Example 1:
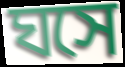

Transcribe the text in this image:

ঘসে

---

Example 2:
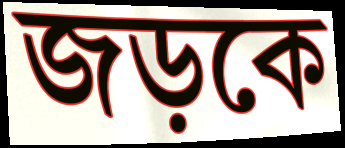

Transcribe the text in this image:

জড়কে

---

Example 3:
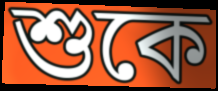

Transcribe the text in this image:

শুকে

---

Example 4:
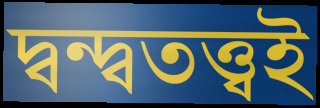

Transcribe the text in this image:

দ্বন্দ্বতত্ত্বই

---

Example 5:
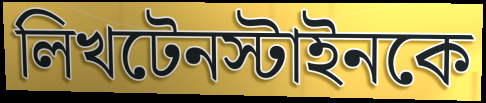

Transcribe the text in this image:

লিখটেনস্টাইনকে